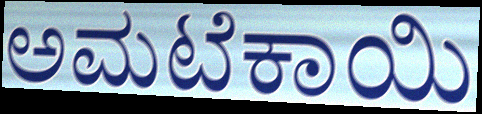
ಅಮಟೆಕಾಯಿ